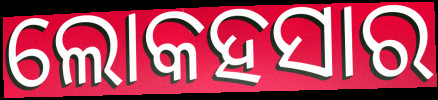
ଲୋକହସାର